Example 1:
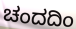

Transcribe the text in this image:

ಚಂದದಿಂ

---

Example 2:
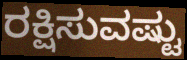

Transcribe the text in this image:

ರಕ್ಷಿಸುವಷ್ಟು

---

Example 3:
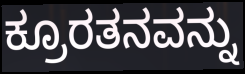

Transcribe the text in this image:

ಕ್ರೂರತನವನ್ನು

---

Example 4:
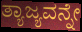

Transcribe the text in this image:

ತ್ಯಾಜ್ಯವನ್ನೇ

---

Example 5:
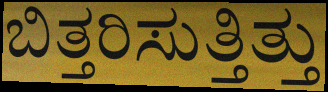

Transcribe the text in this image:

ಬಿತ್ತರಿಸುತ್ತಿತ್ತು